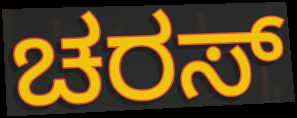
ಚರಸ್